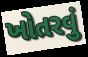
ખોતરવું